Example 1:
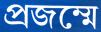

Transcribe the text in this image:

প্রজম্মে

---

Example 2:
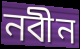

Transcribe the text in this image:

নবীন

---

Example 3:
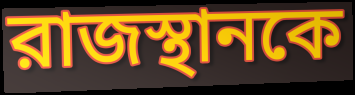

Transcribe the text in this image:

রাজস্থানকে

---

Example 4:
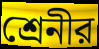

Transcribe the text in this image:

শ্রেনীর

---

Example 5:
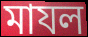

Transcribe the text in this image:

মাযল